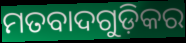
ମତବାଦଗୁଡ଼ିକର